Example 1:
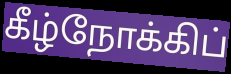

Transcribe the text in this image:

கீழ்நோக்கிப்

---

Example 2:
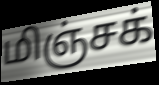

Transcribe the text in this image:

மிஞ்சக்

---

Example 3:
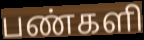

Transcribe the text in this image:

பண்களி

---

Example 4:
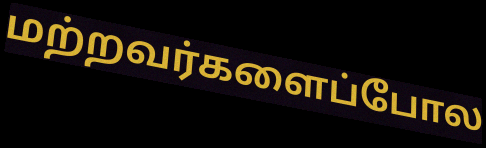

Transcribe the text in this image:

மற்றவர்களைப்போல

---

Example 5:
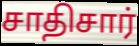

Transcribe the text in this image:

சாதிசார்